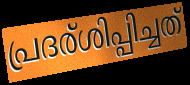
പ്രദര്ശിപ്പിച്ചത്